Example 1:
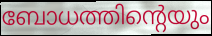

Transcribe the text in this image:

ബോധത്തിന്റെയും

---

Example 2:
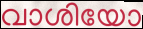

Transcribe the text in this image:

വാശിയോ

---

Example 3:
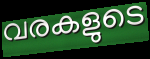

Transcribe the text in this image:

വരകളുടെ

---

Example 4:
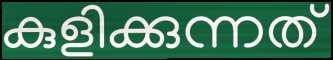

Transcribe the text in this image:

കുളിക്കുന്നത്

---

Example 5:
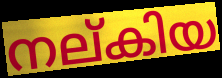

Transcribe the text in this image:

നല്കിയ